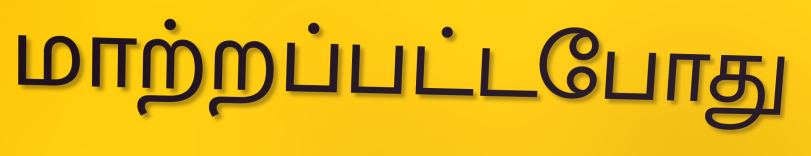
மாற்றப்பட்டபோது